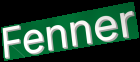
Fenner